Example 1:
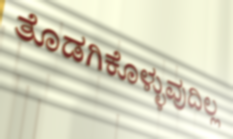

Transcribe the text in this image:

ತೊಡಗಿಕೊಳ್ಳುವುದಿಲ್ಲ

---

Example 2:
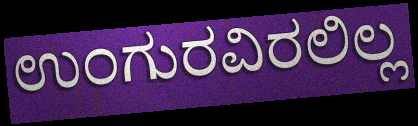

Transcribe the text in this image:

ಉಂಗುರವಿರಲಿಲ್ಲ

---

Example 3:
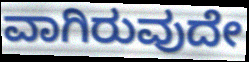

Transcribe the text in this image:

ವಾಗಿರುವುದೇ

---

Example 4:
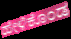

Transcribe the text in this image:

ಹೇಳಿಕೊಂಡ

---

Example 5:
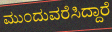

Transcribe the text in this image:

ಮುಂದುವರೆಸಿದ್ದಾರೆ